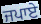
ਜਪਾਏ